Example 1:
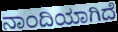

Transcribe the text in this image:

ನಾಂದಿಯಾಗಿದೆ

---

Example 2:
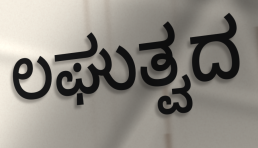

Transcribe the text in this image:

ಲಘುತ್ವದ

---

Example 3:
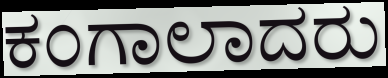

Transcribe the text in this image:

ಕಂಗಾಲಾದರು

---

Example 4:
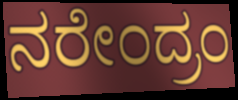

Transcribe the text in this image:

ನರೇಂದ್ರಂ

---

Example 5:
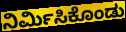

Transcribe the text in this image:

ನಿರ್ಮಿಸಿಕೊಂಡು